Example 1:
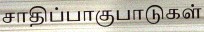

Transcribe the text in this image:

சாதிப்பாகுபாடுகள்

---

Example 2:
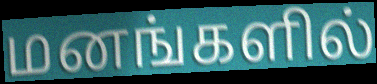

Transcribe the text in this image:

மனங்களில்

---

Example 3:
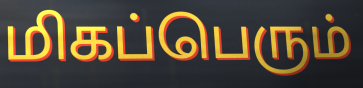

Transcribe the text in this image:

மிகப்பெரும்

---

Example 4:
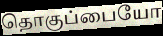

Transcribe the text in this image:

தொகுப்பையோ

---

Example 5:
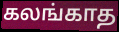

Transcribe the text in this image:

கலங்காத